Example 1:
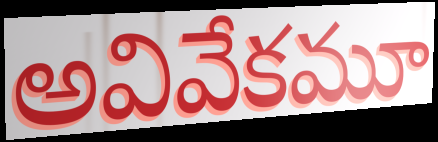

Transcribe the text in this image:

అవివేకమూ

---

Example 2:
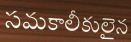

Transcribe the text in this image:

సమకాలీకులైన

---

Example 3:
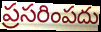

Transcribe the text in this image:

ప్రసరింపదు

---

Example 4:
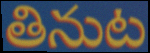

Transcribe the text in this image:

తినుట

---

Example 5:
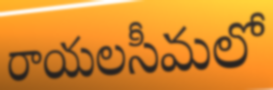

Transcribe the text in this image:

రాయలసీమలో